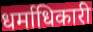
धर्माधिकारी